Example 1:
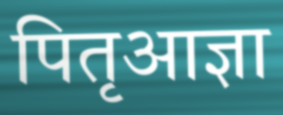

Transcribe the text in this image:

पितृआज्ञा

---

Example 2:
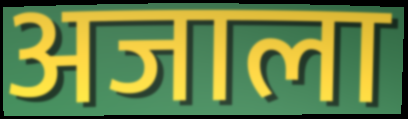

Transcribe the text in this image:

अजाला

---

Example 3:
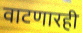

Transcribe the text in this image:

वाटणारही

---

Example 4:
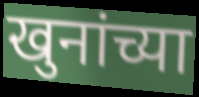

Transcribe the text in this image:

खुनांच्या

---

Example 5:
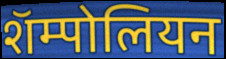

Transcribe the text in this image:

शॅम्पोलियन